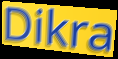
Dikra